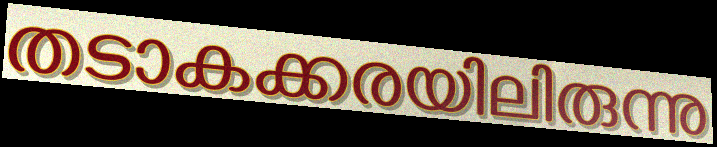
തടാകക്കരയിലിരുന്നു